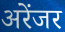
अरेंजर